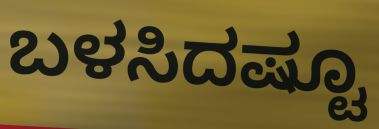
ಬಳಸಿದಷ್ಟೂ